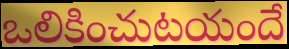
ఒలికించుటయందే